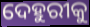
ଦେହୁରୀକୁ